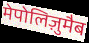
मेपोलिज़ुमैब